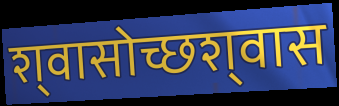
श्वासोच्छश्वास